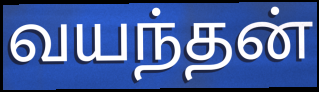
வயந்தன்